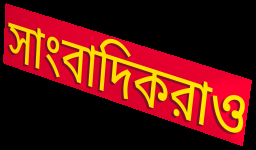
সাংবাদিকরাও